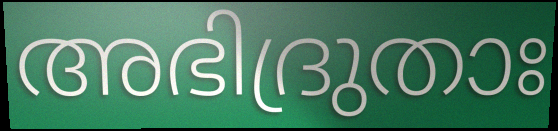
അഭിദ്രുതാഃ